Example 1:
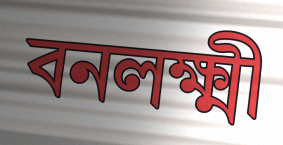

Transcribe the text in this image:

বনলক্ষ্মী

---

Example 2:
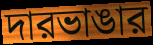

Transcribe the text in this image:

দারভাঙার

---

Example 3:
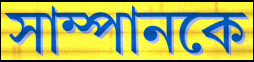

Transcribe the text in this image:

সাম্পানকে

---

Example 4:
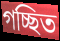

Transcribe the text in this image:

গচ্ছিত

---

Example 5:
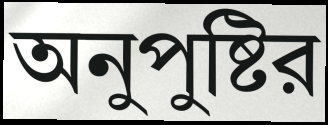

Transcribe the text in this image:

অনুপুষ্টির